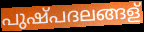
പുഷ്പദലങ്ങള്